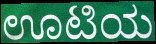
ಊಟಿಯ